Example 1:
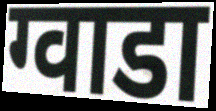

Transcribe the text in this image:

ग्वाडा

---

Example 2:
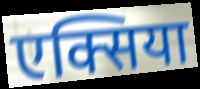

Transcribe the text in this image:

एक्सिया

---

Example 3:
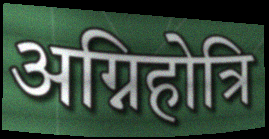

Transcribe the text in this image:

अग्निहोत्रि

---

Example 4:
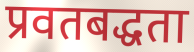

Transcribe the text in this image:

प्रवतबद्धता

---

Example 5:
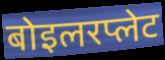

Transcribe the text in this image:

बोइलरप्लेट